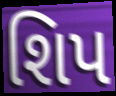
શિપ